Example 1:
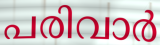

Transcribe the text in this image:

പരിവാർ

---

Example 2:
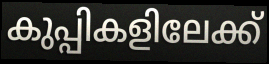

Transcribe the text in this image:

കുപ്പികളിലേക്ക്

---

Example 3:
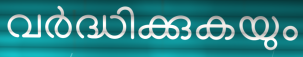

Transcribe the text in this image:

വർദ്ധിക്കുകയും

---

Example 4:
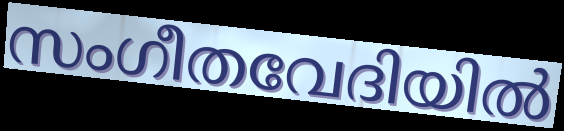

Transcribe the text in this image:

സംഗീതവേദിയിൽ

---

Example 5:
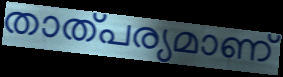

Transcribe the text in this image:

താത്പര്യമാണ്